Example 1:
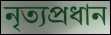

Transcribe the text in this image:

নৃত্যপ্রধান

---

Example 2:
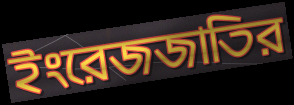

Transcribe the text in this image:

ইংরেজজাতির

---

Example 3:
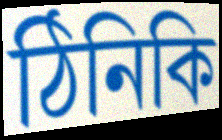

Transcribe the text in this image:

ঠিনিকি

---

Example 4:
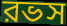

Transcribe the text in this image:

রভস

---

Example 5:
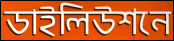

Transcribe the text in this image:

ডাইলিউশনে